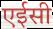
एईसी